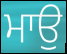
ਮਾਉ